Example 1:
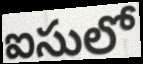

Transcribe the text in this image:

ఐసులో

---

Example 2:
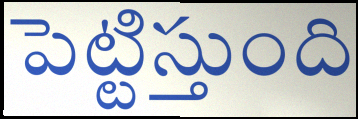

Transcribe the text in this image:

పెట్టిస్తుంది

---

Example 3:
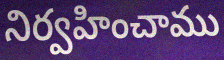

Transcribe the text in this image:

నిర్వహించాము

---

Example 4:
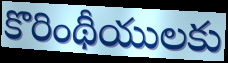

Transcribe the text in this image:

కొరింథీయులకు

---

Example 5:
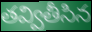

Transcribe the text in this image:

తవ్వితీసిన